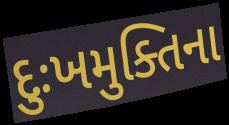
દુઃખમુક્તિના